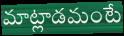
మాట్లాడమంటే